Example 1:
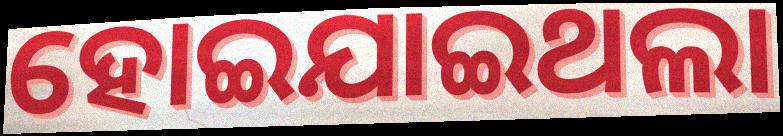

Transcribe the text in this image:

ହୋଇଯାଇଥଲା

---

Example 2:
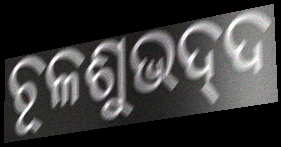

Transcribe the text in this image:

ଚୂଳଶୁଭଦ୍‍ଦ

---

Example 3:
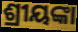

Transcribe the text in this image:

ଶ୍ରୀୟଙ୍କା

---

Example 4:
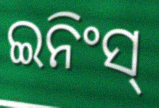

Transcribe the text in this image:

ଇନିଂସ୍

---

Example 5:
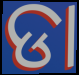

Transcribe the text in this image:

ଡା